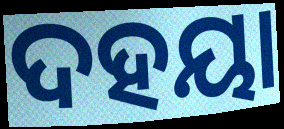
ଦହୟା